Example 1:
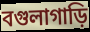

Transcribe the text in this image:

বগুলাগাড়ি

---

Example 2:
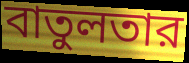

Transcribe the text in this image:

বাতুলতার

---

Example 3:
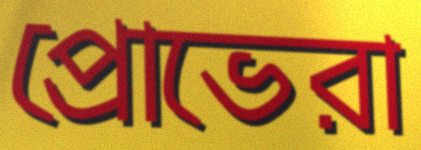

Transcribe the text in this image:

প্রোভেরা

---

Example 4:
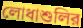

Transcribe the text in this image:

লোধাশুলির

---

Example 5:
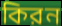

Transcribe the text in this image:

কিরন